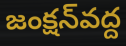
జంక్షన్‌వద్ద